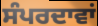
ਸੰਪਰਦਾਵਾਂ